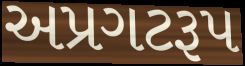
અપ્રગટરૂપ